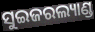
ସୁଇଜରଲ୍ୟାଣ୍ଡ